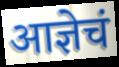
आज्ञेचं